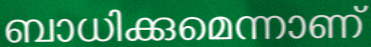
ബാധിക്കുമെന്നാണ്